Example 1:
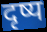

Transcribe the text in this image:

दृष्य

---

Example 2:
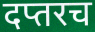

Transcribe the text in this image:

दप्तरच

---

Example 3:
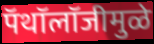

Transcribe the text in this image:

पॅथॉलॉजीमुळे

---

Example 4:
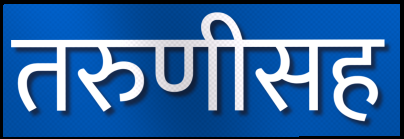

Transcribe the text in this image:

तरुणीसह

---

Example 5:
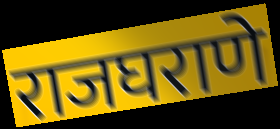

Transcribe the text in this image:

राजघराणे